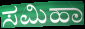
ಸಮಿಹಾ